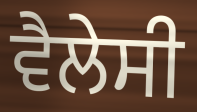
ਵੈਲੇਸੀ